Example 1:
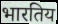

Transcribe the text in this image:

भारतिय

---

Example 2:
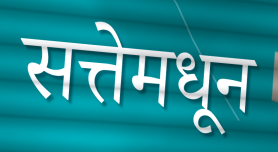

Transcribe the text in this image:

सत्तेमधून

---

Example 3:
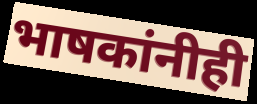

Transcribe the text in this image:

भाषकांनीही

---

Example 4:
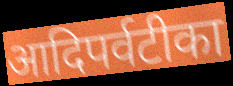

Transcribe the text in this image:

आदिपर्वटीका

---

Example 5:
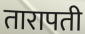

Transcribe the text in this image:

तारापती